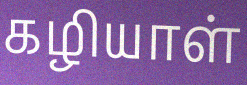
கழியாள்